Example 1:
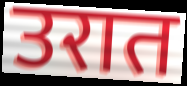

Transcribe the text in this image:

उरात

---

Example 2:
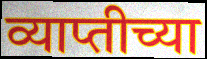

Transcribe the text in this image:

व्याप्तीच्या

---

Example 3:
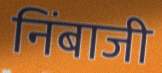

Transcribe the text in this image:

निंबाजी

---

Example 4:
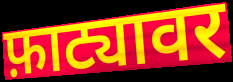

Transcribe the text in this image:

फ़ाट्यावर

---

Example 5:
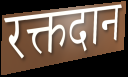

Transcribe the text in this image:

रक्तदान